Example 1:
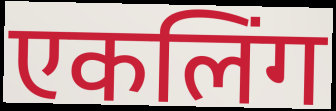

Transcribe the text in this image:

एकलिंग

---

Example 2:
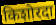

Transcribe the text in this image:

किशोरदा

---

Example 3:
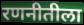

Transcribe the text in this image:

रणनीतीला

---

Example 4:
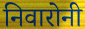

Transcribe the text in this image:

निवारोनी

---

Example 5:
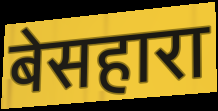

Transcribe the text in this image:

बेसहारा